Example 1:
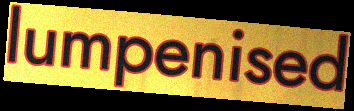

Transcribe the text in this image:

lumpenised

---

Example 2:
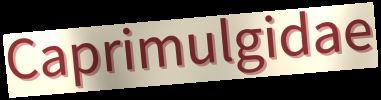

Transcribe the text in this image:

Caprimulgidae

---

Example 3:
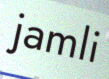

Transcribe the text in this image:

jamli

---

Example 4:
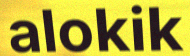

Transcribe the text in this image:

alokik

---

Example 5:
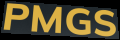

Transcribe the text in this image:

PMGS